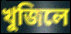
খুজিলে